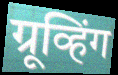
ग्रूव्हिंग